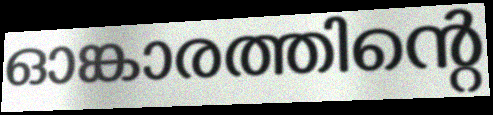
ഓങ്കാരത്തിന്റെ